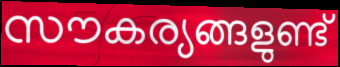
സൗകര്യങ്ങളുണ്ട്